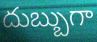
దుబ్బుగా